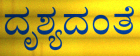
ದೃಶ್ಯದಂತೆ